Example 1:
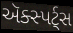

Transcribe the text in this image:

ઍક્સ્પર્ટ્સ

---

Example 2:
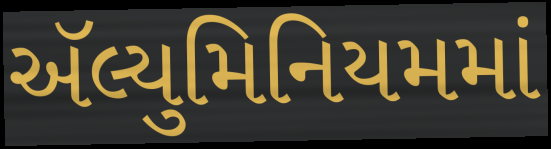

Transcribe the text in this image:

ઍલ્યુમિનિયમમાં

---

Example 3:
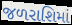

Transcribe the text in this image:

જળરાશિમાં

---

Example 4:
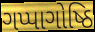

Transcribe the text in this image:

ગપ્પાગોષ્ઠિ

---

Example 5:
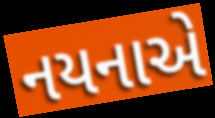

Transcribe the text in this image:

નયનાએ